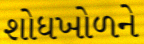
શોધખોળને